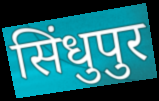
सिंधुपुर